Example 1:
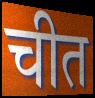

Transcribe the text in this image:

चीत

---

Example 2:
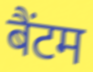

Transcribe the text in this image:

बैंटम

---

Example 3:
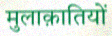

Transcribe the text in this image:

मुलाक़ातियों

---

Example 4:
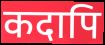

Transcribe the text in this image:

कदापि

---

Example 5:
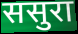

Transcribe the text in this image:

ससुरा